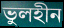
ভুলহীন